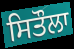
ਸਿਤੌਲਾ